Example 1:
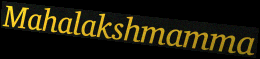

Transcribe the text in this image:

Mahalakshmamma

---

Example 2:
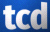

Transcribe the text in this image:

tcd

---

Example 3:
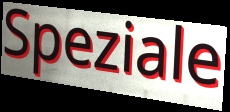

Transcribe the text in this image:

Speziale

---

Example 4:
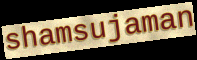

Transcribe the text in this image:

shamsujaman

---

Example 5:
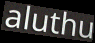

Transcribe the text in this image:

aluthu